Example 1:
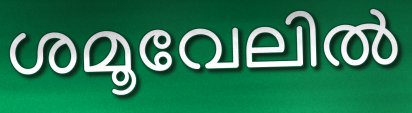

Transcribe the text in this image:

ശമൂവേലിൽ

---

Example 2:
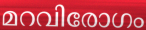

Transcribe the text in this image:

മറവിരോഗം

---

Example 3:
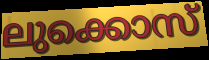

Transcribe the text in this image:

ലുക്കൊസ്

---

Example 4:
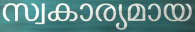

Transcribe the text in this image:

സ്വകാര്യമായ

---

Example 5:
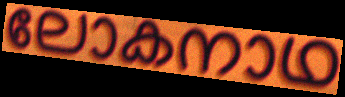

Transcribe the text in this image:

ലോകനാഥ